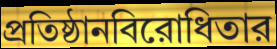
প্রতিষ্ঠানবিরোধিতার